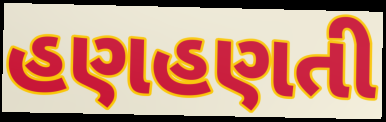
હણહણતી